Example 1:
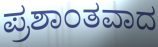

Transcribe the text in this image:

ಪ್ರಶಾಂತವಾದ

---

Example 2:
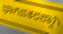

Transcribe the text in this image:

ಭಾಗವತರನ್ನಾಗಿ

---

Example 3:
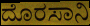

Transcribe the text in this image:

ದೊರಸಾನಿ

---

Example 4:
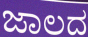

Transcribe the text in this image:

ಜಾಲದ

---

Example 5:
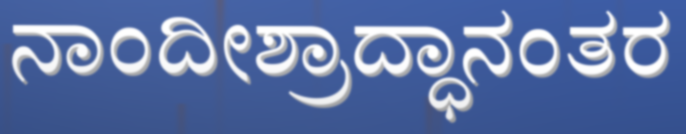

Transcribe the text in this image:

ನಾಂದೀಶ್ರಾದ್ಧಾನಂತರ